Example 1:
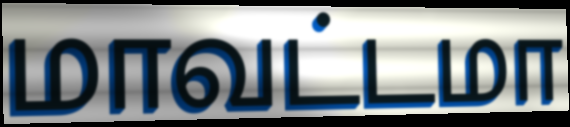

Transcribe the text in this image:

மாவட்டமா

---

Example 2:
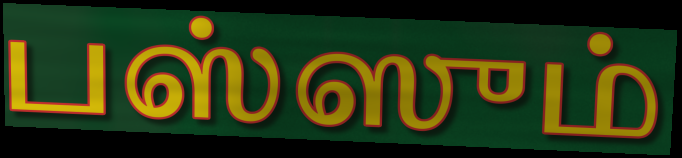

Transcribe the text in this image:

பஸ்ஸும்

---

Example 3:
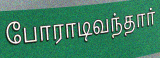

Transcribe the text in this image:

போராடிவந்தார்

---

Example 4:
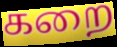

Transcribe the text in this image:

கறை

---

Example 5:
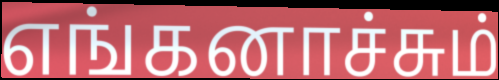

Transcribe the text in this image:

எங்கனாச்சும்